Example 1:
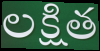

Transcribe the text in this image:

లక్షిత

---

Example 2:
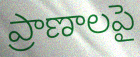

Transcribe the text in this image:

ప్రాణాలపై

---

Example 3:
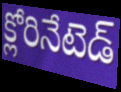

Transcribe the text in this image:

క్లోరినేటెడ్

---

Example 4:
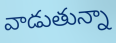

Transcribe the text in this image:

వాడుతున్నా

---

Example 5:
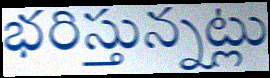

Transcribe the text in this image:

భరిస్తున్నట్లు